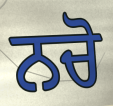
ਨਚੋ